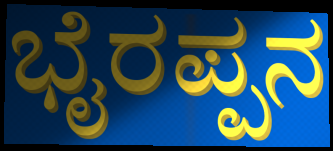
ಭೈರಪ್ಪನ